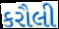
કરૌલી